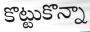
కొట్టుకొన్నా